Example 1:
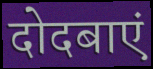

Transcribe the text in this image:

दोदबाएं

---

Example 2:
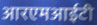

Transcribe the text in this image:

आरएमआईटी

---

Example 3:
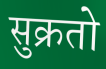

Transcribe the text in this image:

सुक्रतो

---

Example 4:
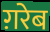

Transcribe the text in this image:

ग़रेब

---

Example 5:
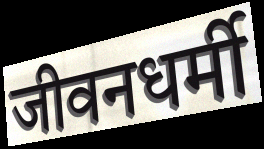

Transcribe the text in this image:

जीवनधर्मी